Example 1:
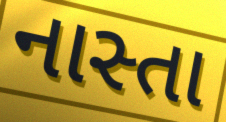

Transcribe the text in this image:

નાસ્તા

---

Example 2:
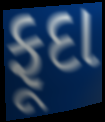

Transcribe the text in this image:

ફૂદા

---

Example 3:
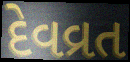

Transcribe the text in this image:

દેવવ્રત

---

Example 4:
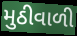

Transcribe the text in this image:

મુઠીવાળી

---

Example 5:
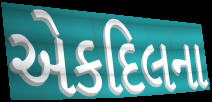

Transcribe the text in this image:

એકદિલના